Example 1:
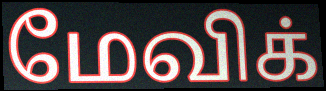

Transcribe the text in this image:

மேவிக்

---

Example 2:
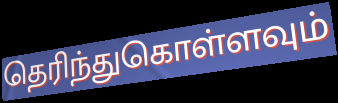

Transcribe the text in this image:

தெரிந்துகொள்ளவும்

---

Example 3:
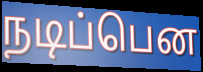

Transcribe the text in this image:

நடிப்பென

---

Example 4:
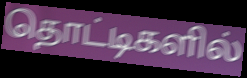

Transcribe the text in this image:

தொட்டிகளில்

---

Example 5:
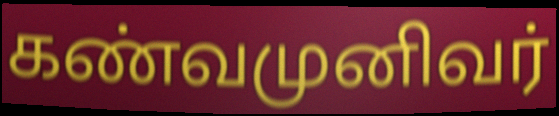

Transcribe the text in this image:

கண்வமுனிவர்